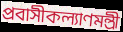
প্রবাসীকল্যাণমন্ত্রী